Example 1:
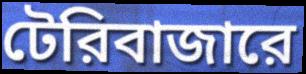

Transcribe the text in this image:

টেরিবাজারে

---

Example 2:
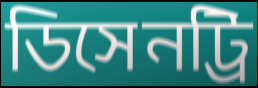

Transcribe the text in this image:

ডিসেনট্রি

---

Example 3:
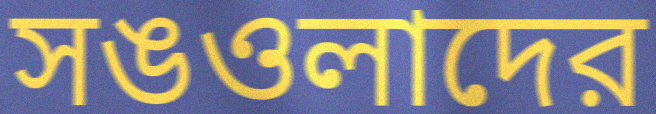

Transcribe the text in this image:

সঙওলাদের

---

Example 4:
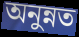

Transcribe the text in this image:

অনুন্নত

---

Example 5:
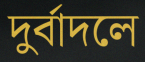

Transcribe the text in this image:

দুর্বাদলে